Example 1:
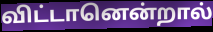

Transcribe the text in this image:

விட்டானென்றால்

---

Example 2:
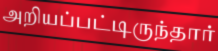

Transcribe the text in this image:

அறியப்பட்டிருந்தார்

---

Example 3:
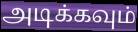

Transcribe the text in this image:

அடிக்கவும்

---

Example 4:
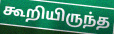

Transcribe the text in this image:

கூறியிருந்த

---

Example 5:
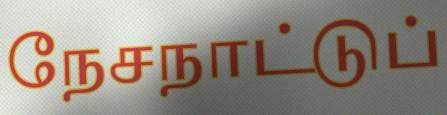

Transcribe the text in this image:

நேசநாட்டுப்